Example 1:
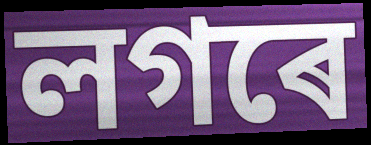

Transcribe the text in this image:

লগৰে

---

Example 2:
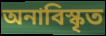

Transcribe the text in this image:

অনাবিস্কৃত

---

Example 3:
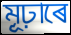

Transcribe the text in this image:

মূঢ়াৰে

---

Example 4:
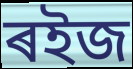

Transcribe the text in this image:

ৰইজ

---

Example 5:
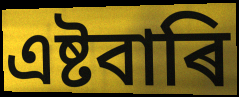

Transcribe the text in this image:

এষ্টবাৰি